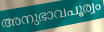
അനുഭാവപൂര്വം